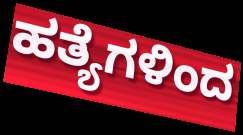
ಹತ್ಯೆಗಳಿಂದ